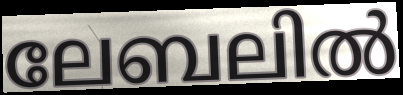
ലേബലിൽ